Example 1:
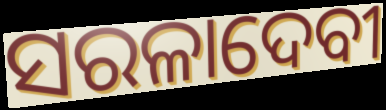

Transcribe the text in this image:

ସରଳାଦେବୀ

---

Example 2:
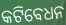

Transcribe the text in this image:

କଟିବେଧନ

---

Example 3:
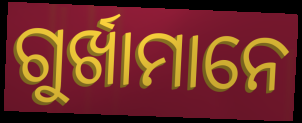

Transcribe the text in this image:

ଗୁର୍ଖାମାନେ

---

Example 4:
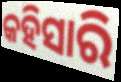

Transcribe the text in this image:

କହିସାରି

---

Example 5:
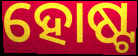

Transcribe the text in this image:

ହୋଷ୍ଟ